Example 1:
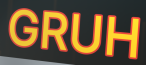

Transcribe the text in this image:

GRUH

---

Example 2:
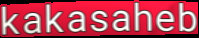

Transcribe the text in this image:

kakasaheb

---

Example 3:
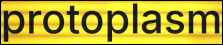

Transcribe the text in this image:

protoplasm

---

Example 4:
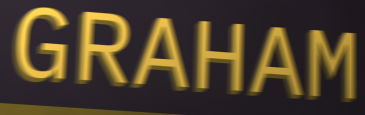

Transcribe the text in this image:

GRAHAM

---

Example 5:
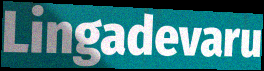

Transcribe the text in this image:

Lingadevaru